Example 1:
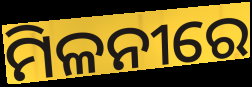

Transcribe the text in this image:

ମିଳନୀରେ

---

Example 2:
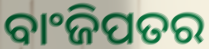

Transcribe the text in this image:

ବାଂଜିପତର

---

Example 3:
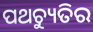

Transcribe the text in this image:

ପଥଚ୍ୟୁତିର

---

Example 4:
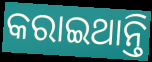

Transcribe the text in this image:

କରାଇଥାନ୍ତି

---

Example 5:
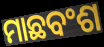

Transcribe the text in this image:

ମାଛବଂଶ